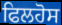
ਫਿਲਹੋਸ